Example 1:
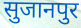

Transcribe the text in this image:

सुजानपुर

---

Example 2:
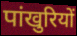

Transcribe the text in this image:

पांखुरियों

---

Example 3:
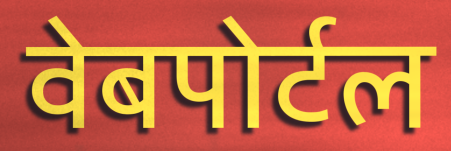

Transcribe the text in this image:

वेबपोर्टल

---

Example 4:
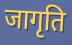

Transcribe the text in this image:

जागृति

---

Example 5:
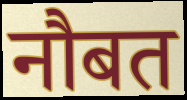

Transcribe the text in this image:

नौबत